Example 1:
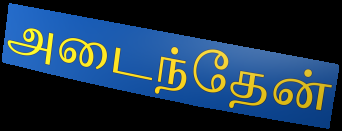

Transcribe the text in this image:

அடைந்தேன்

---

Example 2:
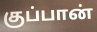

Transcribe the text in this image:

குப்பான்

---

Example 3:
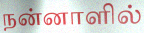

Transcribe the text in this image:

நன்னாளில்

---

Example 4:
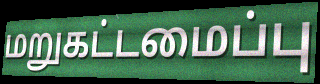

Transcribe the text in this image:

மறுகட்டமைப்பு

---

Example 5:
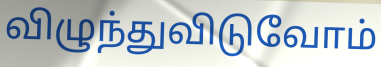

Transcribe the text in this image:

விழுந்துவிடுவோம்